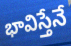
భావిస్తేనే